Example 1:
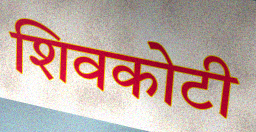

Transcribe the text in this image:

शिवकोटी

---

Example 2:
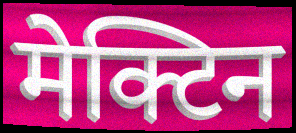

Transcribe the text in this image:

मेक्टिन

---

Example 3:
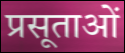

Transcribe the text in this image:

प्रसूताओं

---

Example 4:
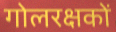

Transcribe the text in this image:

गोलरक्षकों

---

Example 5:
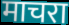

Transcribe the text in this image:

माचरा